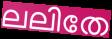
ലലിതേ